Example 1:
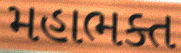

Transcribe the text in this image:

મહાભક્ત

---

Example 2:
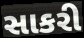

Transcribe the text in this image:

સાકરી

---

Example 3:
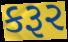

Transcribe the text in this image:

કરૂર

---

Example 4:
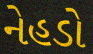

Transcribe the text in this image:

નેહડો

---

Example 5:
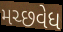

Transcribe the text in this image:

મચ્છવેધ